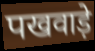
पखवाड़े